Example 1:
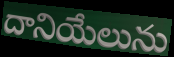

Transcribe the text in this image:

దానియేలును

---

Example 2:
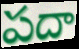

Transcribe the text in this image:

పదా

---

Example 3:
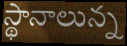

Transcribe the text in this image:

స్థానాలున్న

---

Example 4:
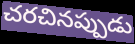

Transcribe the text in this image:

చరచినప్పుడు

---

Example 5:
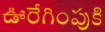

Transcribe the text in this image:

ఊరేగింపుకి